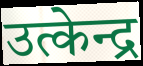
उत्केन्द्र